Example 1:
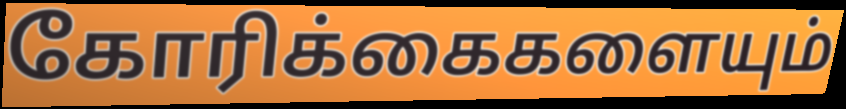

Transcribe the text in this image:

கோரிக்கைகளையும்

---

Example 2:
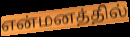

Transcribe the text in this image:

என்மனத்தில்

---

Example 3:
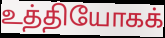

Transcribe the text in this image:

உத்தியோகக்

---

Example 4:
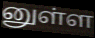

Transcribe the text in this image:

னுள்ள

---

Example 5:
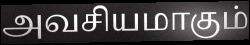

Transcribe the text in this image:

அவசியமாகும்